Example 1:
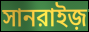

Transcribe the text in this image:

সানরাইজ়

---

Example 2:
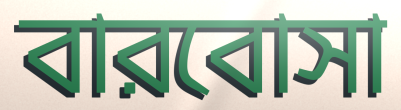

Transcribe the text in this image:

বারবোসা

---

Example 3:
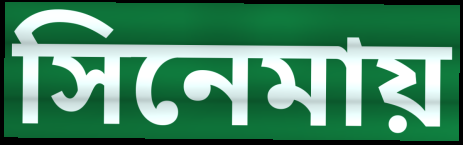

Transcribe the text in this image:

সিনেমায়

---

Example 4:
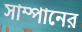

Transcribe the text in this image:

সাম্পানের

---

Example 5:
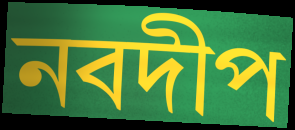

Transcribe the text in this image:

নবদীপ